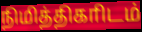
நிமித்திகரிடம்